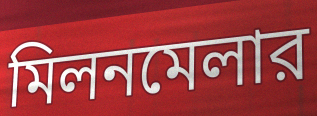
মিলনমেলার